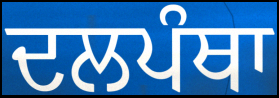
ਦਲਪੰਥਾ